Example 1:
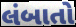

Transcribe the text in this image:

લંબાતો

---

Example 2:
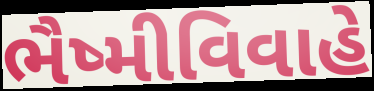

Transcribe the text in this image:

ભૈષ્મીવિવાહે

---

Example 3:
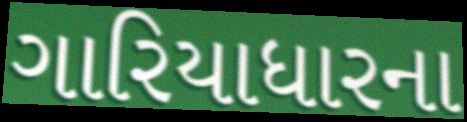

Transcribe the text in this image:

ગારિયાધારના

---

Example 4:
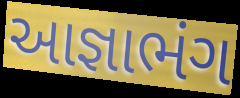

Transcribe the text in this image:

આજ્ઞાભંગ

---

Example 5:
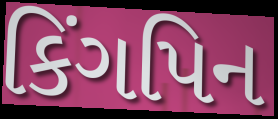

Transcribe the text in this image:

કિંગપિન